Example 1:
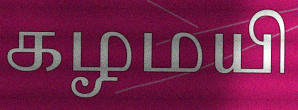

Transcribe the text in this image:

கழமயி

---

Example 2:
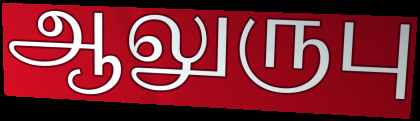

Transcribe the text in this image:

ஆலுருபு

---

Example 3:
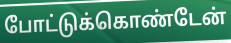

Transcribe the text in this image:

போட்டுக்கொண்டேன்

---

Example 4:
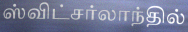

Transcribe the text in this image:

ஸ்விட்சர்லாந்தில்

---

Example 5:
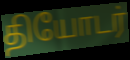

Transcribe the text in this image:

தியோடர்